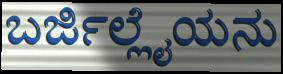
ಬರ್ಜಿಲ್ಲೈಯನು